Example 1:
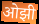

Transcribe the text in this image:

ओझी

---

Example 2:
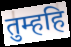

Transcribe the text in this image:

तुम्हहि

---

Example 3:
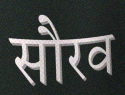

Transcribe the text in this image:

सौरव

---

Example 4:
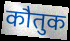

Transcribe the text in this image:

कौतुक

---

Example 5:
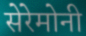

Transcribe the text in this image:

सेरेमोनी